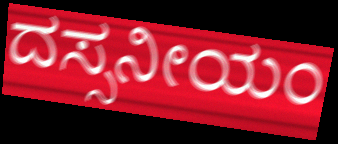
ದಸ್ಸನೀಯಂ